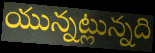
యున్నట్లున్నది